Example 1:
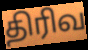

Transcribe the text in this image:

திரிவ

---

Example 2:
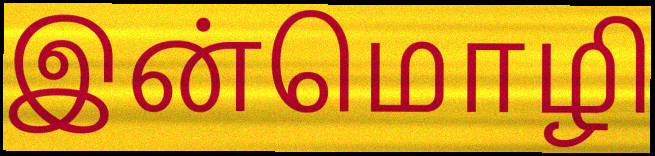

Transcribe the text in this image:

இன்மொழி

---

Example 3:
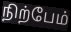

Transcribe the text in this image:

நிற்பேம்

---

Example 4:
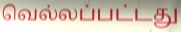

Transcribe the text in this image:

வெல்லப்பட்டது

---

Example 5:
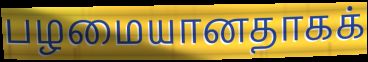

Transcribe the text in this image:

பழமையானதாகக்